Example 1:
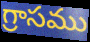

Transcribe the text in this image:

గ్రాసము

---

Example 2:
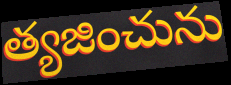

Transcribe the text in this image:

త్యజించును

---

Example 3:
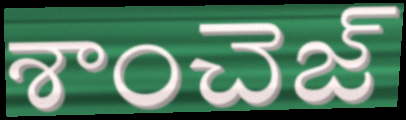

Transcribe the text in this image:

శాంచెజ్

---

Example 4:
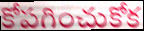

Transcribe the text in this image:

కోపగించుకోక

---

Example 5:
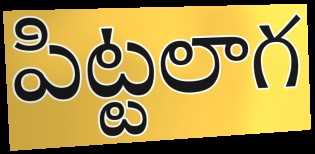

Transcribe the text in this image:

పిట్టలాగ